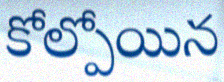
కోల్పోయిన